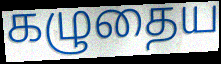
கழுதைய